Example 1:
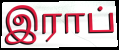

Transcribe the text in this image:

இராப்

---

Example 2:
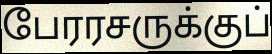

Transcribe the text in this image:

பேரரசருக்குப்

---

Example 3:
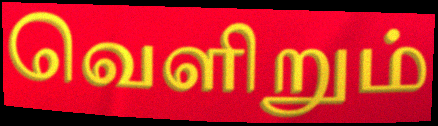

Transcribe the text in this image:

வெளிறும்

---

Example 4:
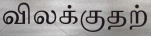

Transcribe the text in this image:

விலக்குதற்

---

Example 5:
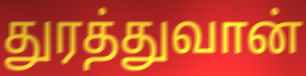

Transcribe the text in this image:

துரத்துவான்